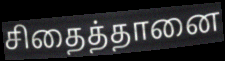
சிதைத்தானை